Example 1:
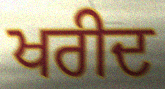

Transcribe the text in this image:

ਖਰੀਦ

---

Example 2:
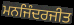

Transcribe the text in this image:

ਮਨਜਿੰਦਰਜੀਤ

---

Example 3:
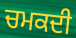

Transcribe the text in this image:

ਚਮਕਦੀ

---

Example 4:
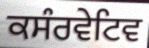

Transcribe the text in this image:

ਕਸੰਰਵੇਟਿਵ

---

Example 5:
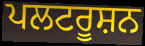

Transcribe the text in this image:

ਪਲਟਰੂਸ਼ਨ